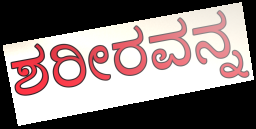
ಶರೀರವನ್ನ